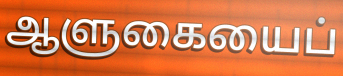
ஆளுகையைப்